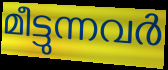
മീട്ടുന്നവർ